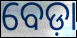
ବେଡ଼ା